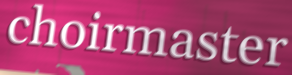
choirmaster